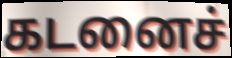
கடனைச்